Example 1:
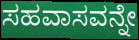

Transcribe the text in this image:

ಸಹವಾಸವನ್ನೇ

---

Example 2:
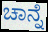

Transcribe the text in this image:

ಚಾನ್ನೆ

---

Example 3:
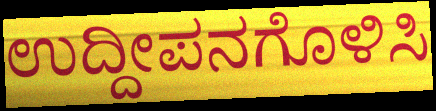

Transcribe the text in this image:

ಉದ್ದೀಪನಗೊಳಿಸಿ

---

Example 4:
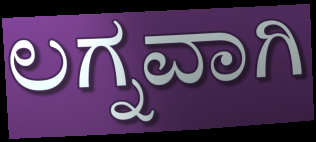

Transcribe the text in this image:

ಲಗ್ನವಾಗಿ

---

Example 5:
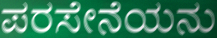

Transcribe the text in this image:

ಪರಸೇನೆಯನು